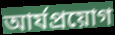
আর্যপ্রয়োগ